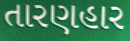
તારણહાર